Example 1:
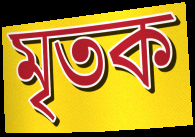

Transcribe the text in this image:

মৃতক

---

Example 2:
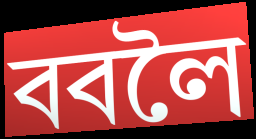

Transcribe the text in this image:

ববলৈ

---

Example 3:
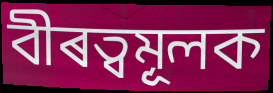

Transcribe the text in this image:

বীৰত্বমূলক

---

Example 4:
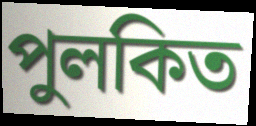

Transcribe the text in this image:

পুলকিত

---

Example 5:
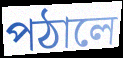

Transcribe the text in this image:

পঠালে